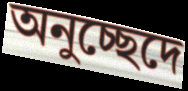
অনুচ্ছেদে